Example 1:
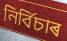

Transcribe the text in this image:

নিৰ্বিচাৰ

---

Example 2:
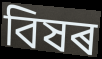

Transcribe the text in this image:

বিষৰ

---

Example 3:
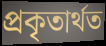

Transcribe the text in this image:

প্ৰকৃতাৰ্থত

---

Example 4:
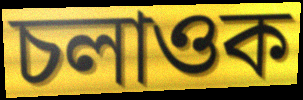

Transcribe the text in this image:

চলাওক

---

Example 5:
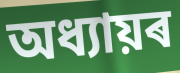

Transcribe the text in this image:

অধ্যায়ৰ